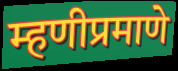
म्हणीप्रमाणे